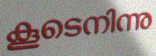
കൂടെനിന്നു